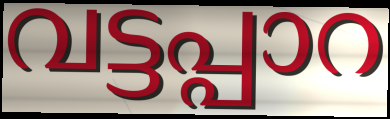
വട്ടപ്പാറ